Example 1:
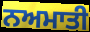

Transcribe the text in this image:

ਨਅਮਾਤੀ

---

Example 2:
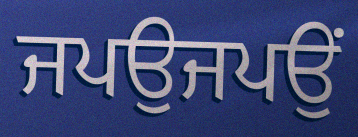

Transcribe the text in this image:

ਜਪਉਜਪਉਂ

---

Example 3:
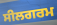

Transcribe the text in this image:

ਸੀਲਗਰਮ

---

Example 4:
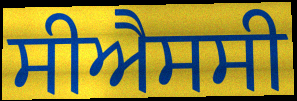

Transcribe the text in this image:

ਸੀਐਸਸੀ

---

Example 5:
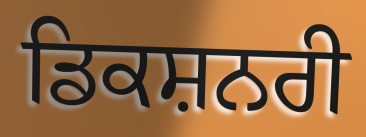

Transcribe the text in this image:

ਡਿਕਸ਼ਨਰੀ